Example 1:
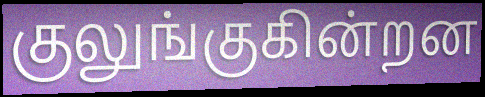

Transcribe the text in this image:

குலுங்குகின்றன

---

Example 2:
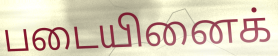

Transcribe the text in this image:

படையினைக்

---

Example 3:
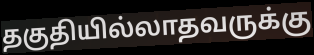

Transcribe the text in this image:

தகுதியில்லாதவருக்கு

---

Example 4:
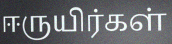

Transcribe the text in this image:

ஈருயிர்கள்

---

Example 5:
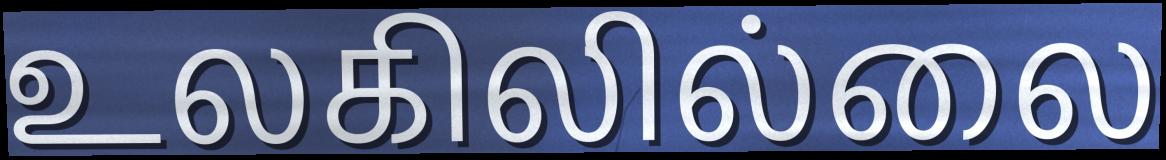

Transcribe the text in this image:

உலகிலில்லை